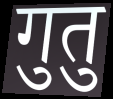
गुतु